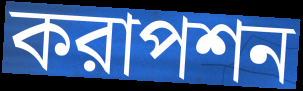
করাপশন